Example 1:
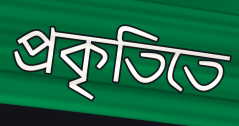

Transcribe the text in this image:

প্রকৃতিতে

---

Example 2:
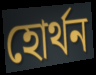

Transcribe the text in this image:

হোর্থন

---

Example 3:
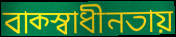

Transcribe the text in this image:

বাক্স্বাধীনতায়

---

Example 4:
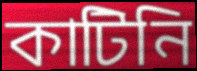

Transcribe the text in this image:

কাটিনি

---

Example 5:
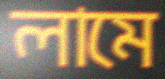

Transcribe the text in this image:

লামে